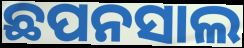
ଛପନସାଲ